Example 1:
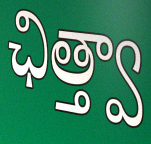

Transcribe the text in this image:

ఛిత్త్వా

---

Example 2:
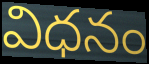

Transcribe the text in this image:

విధనం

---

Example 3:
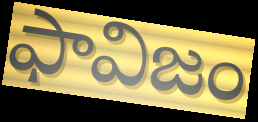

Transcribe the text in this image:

ఫావిజం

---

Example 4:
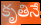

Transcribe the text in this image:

కృతినే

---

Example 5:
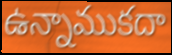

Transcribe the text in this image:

ఉన్నాముకదా